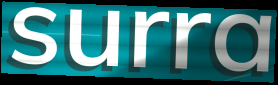
surra